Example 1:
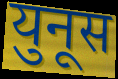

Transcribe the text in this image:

युनूस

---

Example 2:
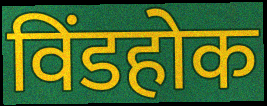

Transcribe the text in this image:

विंडहोक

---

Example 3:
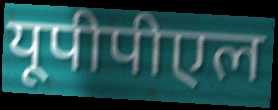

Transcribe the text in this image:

यूपीपीएल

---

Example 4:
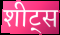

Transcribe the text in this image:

शीट्स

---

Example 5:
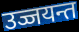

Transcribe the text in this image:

उज्जयन्त